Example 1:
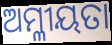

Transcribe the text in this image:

ଅମ୍ଳୀୟତା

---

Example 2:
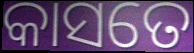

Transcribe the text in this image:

କାସତେ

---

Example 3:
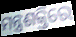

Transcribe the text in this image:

ମନ୍ତ୍ରଶକ୍ତିରେ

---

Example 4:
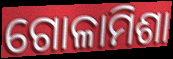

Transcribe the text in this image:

ଗୋଳାମିଶା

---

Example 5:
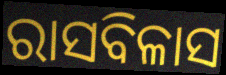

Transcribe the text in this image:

ରାସବିଳାସ